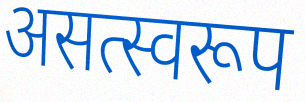
असत्स्वरूप